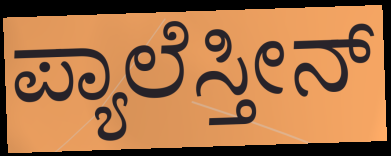
ಪ್ಯಾಲೆಸ್ತೀನ್